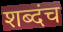
शब्दंच